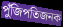
পুঁজিপতিজনক